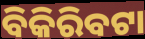
ବିକିରିବଟା